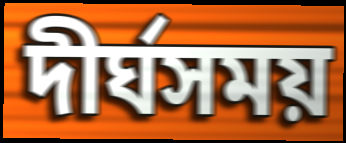
দীর্ঘসময়